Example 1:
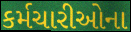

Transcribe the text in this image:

કર્મચારીઓના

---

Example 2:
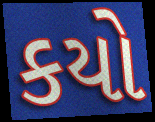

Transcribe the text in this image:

કયો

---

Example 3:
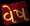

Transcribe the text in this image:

વેષ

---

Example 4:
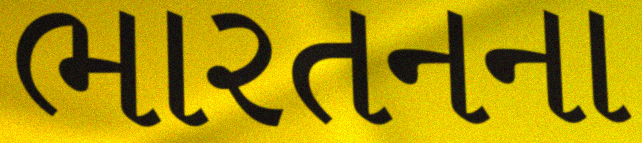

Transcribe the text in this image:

ભારતનના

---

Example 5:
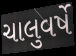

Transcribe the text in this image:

ચાલુવર્ષે